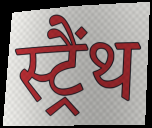
स्ट्रैंथ